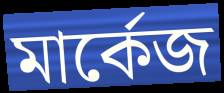
মার্কেজ